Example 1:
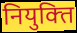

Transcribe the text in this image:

नियुक्‍ति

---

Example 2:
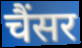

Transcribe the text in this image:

चैंसर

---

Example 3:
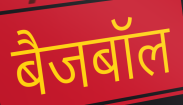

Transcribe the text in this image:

बैजबॉल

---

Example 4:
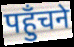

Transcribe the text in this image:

पहुंँचने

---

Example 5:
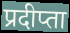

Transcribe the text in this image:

प्रदीप्ता